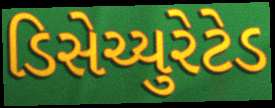
ડિસેચ્યુરેટેડ